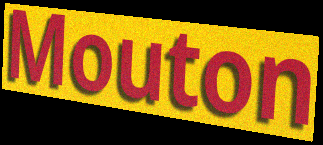
Mouton